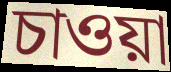
চাওয়া